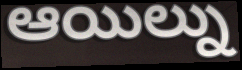
ఆయిల్ను